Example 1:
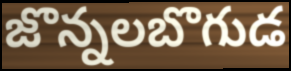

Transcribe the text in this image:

జొన్నలబొగుడ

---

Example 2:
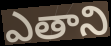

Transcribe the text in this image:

ఎతాని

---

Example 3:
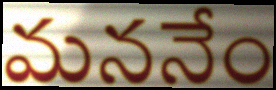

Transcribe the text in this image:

మననేం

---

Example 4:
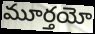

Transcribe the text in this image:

మూర్తయో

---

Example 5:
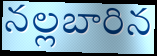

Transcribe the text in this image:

నల్లబారిన